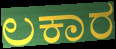
ಲಕಾರ